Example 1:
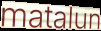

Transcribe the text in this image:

matalun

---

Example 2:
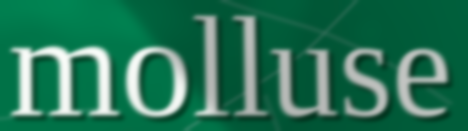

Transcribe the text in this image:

molluse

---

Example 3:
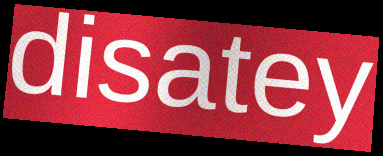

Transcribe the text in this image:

disatey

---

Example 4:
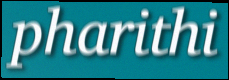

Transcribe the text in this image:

pharithi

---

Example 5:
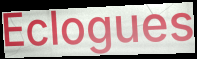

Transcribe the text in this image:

Eclogues